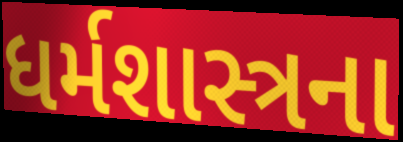
ધર્મશાસ્ત્રના